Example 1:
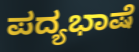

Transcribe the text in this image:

ಪದ್ಯಭಾಷೆ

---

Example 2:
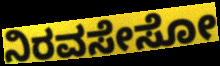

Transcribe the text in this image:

ನಿರವಸೇಸೋ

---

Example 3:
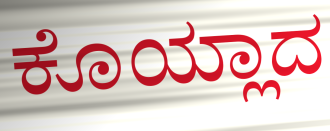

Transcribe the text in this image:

ಕೊಯ್ಲಾದ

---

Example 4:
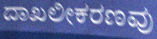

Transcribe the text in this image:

ದಾಖಲೀಕರಣವು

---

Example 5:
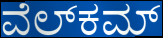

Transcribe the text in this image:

ವೆಲ್‍ಕಮ್